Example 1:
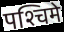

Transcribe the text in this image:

पश्चिमे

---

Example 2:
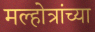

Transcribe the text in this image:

मल्होत्रांच्या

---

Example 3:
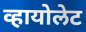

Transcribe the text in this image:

व्हायोलेट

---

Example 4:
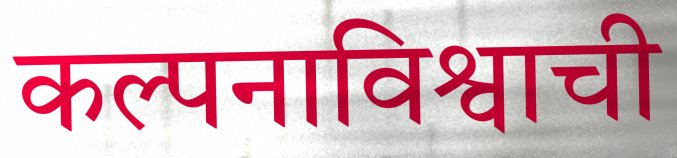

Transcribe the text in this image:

कल्पनाविश्वाची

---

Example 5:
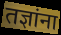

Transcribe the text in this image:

तज्ञांना